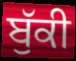
ਬੁੱਕੀ